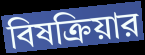
বিষক্রিয়ার